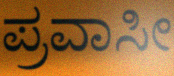
ಪ್ರವಾಸೀ